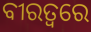
ବୀରତ୍ୱରେ